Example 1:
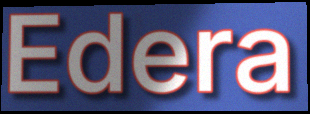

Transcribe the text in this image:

Edera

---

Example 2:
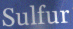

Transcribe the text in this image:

Sulfur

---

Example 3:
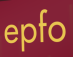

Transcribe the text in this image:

epfo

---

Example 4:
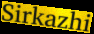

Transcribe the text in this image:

Sirkazhi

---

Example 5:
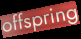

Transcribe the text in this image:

offspring